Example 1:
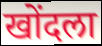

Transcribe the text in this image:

खोंदला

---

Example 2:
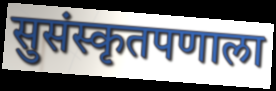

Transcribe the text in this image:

सुसंस्कृतपणाला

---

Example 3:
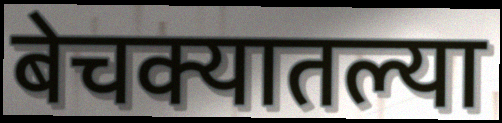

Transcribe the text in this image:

बेचक्यातल्या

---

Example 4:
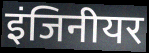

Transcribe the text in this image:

इंजिनीयर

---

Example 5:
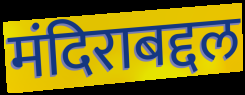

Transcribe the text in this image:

मंदिराबद्दल